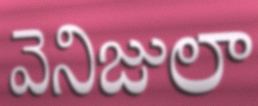
వెనిజులా